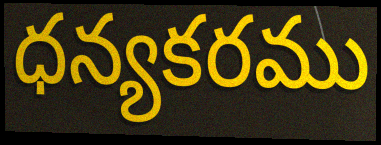
ధన్యకరము